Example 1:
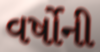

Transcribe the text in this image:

વર્ષોની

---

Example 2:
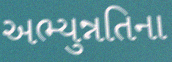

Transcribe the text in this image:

અભ્યુન્નતિના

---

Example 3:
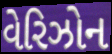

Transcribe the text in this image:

વેરિઝોન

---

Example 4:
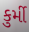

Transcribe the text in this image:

કુર્મી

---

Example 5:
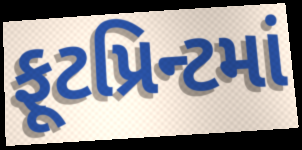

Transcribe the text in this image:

ફૂટપ્રિન્ટમાં